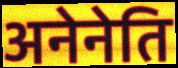
अनेनेति